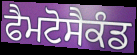
ਫੈਮਟੋਸੈਕੰਡ